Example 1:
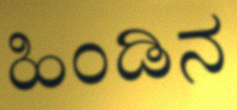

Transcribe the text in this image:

ಹಿಂಡಿನ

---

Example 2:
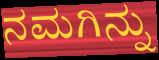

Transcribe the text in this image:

ನಮಗಿನ್ನು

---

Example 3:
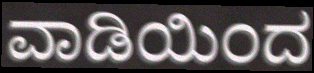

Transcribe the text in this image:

ವಾಡಿಯಿಂದ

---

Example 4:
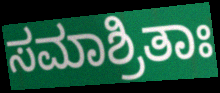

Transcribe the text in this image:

ಸಮಾಶ್ರಿತಾಃ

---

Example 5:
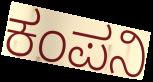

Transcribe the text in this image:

ಕಂಪನಿ